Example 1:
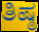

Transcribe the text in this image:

ತಿಷ್ಠ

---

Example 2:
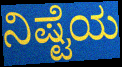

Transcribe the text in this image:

ನಿಷ್ಟೆಯ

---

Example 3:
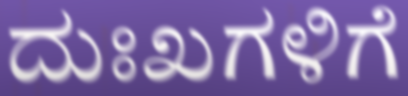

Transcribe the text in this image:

ದುಃಖಗಳಿಗೆ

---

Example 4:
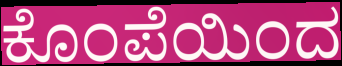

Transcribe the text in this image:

ಕೊಂಪೆಯಿಂದ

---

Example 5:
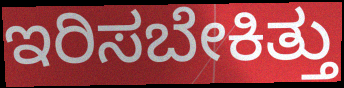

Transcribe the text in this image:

ಇರಿಸಬೇಕಿತ್ತು